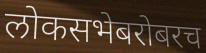
लोकसभेबरोबरच